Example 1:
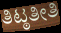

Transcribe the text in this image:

ತಿಟ್ಠತೀತಿ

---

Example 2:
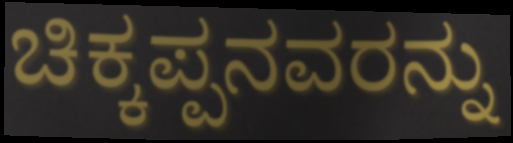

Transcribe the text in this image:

ಚಿಕ್ಕಪ್ಪನವರನ್ನು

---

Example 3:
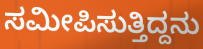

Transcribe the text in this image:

ಸಮೀಪಿಸುತ್ತಿದ್ದನು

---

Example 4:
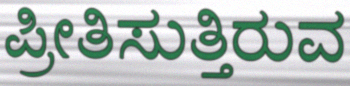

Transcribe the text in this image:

ಪ್ರೀತಿಸುತ್ತಿರುವ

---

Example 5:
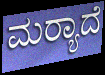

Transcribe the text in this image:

ಮರ‍್ಯಾದೆ